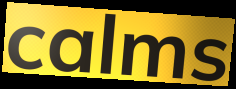
calms